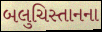
બલુચિસ્તાનના